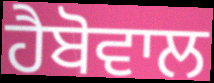
ਹੈਬੋਵਾਲ